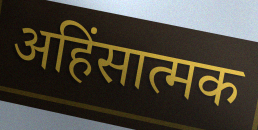
अहिंसात्मक